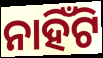
ନାହିଁଟି